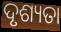
ଦୃଶ୍ୟତା